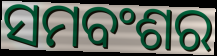
ସମବଂଶର